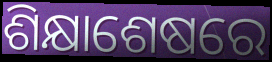
ଶିକ୍ଷାଶେଷରେ